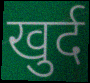
खुर्द